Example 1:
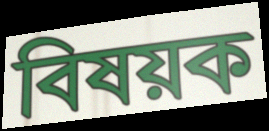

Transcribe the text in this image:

বিষয়ক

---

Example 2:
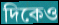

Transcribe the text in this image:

দিকেও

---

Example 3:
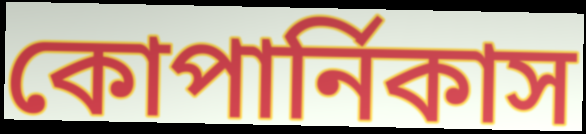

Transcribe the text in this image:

কোপার্নিকাস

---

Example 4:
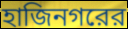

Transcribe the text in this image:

হাজিনগরের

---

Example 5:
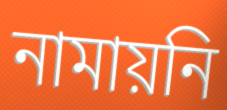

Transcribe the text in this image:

নামায়নি